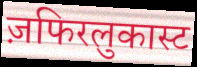
ज़फिरलुकास्ट